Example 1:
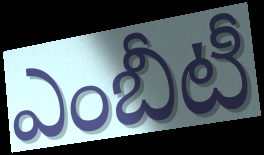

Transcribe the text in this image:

ఎంబీటీ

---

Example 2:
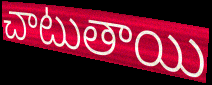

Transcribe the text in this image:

చాటుతాయి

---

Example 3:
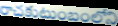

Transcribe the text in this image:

రాచకుటుంబంలోని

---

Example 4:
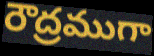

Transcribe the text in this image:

రౌద్రముగా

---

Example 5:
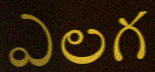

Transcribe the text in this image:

ఎలగ